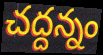
చద్దన్నం